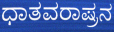
ಧಾತವರಾಷ್ರನ